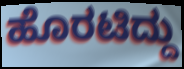
ಹೊರಟಿದ್ದು